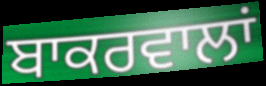
ਬਾਕਰਵਾਲਾਂ